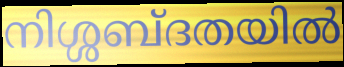
നിശ്ശബ്ദതയിൽ